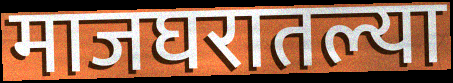
माजघरातल्या